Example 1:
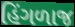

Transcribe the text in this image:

હિંગળાજ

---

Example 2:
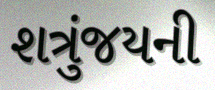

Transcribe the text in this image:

શત્રુંજયની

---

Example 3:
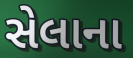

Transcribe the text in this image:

સેલાના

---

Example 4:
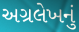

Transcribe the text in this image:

અગ્રલેખનું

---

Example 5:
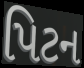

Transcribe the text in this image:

પિટન